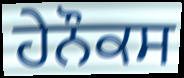
ਹੇਨੌਕਸ